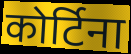
कोर्टिना